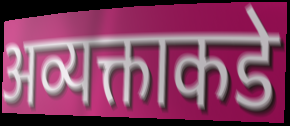
अव्यक्ताकडे